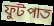
ফুটপাত